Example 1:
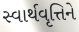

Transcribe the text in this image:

સ્વાર્થવૃત્તિને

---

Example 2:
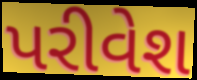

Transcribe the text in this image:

પરીવેશ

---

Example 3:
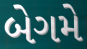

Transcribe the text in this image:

બેગમે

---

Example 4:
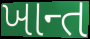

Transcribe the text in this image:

ખાન્ત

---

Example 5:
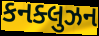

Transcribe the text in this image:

કનક્લુઝન